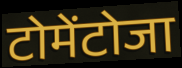
टोमेंटोजा